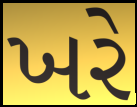
ખરે